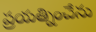
ప్రయత్నించేను